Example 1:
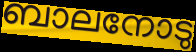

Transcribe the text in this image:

ബാലനോടു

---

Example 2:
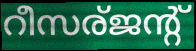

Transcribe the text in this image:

റീസര്ജന്റ്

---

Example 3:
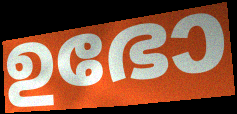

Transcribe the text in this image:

ഉഭോ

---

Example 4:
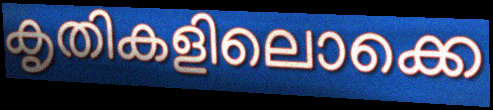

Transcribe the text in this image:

കൃതികളിലൊക്കെ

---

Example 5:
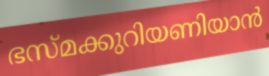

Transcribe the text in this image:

ഭസ്മക്കുറിയണിയാൻ